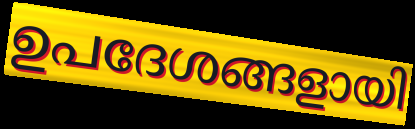
ഉപദേശങ്ങളായി